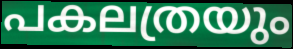
പകലത്രയും